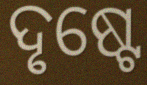
ଦୃଷ୍ଟେ